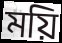
ময়ি